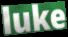
luke